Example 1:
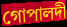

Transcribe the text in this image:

গোপালদী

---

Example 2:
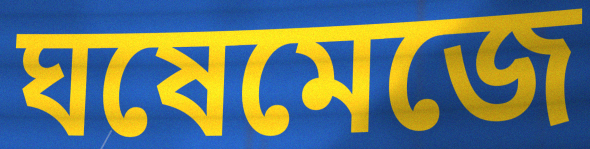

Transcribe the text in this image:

ঘষেমেজে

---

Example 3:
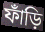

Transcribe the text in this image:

ফাঁড়ি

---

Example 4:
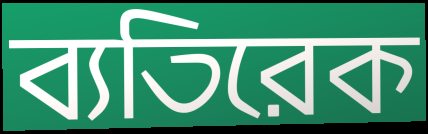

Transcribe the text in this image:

ব্যতিরেক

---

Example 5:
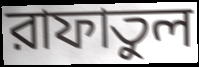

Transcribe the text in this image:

রাফাতুল